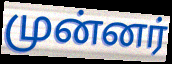
முன்னர்